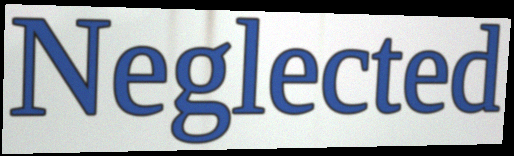
Neglected